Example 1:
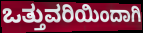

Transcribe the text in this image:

ಒತ್ತುವರಿಯಿಂದಾಗಿ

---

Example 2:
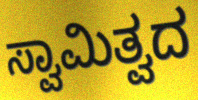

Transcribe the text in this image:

ಸ್ವಾಮಿತ್ವದ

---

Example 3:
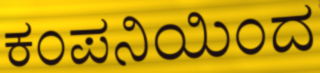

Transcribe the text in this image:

ಕಂಪನಿಯಿಂದ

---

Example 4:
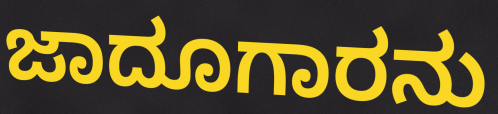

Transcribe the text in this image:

ಜಾದೂಗಾರನು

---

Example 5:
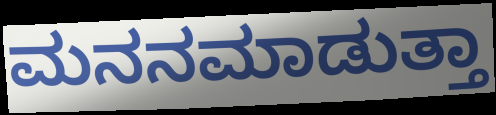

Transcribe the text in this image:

ಮನನಮಾಡುತ್ತಾ